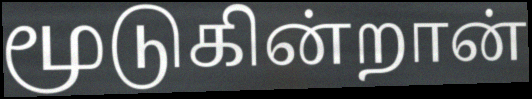
மூடுகின்றான்